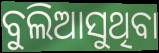
ବୁଲିଆସୁଥିବା